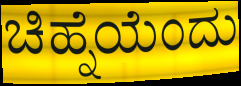
ಚಿಹ್ನೆಯೆಂದು